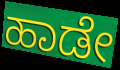
ಹಾಡೇ